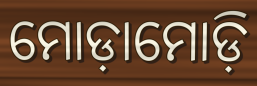
ମୋଡ଼ାମୋଡ଼ି